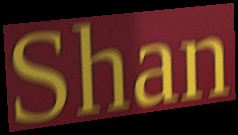
Shan